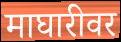
माघारीवर